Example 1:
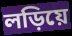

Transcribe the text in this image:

লড়িয়ে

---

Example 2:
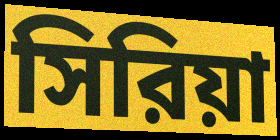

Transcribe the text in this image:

সিরিয়া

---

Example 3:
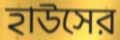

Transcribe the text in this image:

হাউসের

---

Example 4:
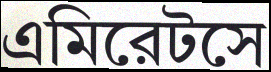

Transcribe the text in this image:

এমিরেটসে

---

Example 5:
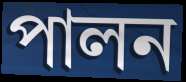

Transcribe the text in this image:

পালন